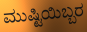
ಮುಷ್ಟಿಯಿಬ್ಬರ